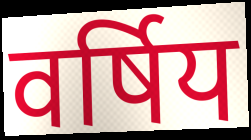
वर्षिय